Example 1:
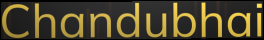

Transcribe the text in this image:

Chandubhai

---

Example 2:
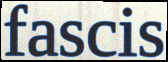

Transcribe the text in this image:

fascis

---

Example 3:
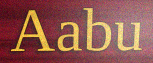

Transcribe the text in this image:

Aabu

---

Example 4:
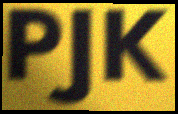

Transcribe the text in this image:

PJK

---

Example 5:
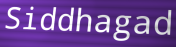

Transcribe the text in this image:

Siddhagad